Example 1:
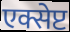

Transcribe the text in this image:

एक्सेप्ट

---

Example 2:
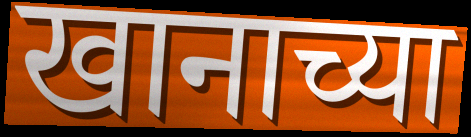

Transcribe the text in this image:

खानाच्या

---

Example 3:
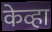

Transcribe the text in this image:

केव्हा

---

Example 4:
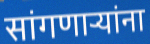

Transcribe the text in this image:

सांगणार्‍यांना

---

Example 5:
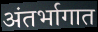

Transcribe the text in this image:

अंतर्भागात